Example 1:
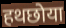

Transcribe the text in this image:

हथछोया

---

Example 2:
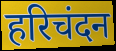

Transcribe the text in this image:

हरिचंदन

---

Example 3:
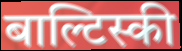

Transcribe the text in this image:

बाल्टिस्की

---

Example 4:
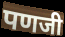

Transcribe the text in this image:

पणजी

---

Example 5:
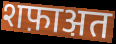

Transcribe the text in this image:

शफ़ाअ़त